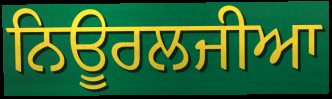
ਨਿਊਰਲਜੀਆ